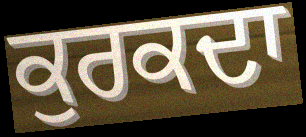
ਕੁਰਕਦਾ